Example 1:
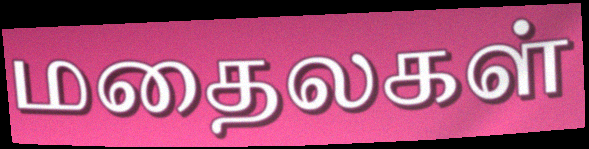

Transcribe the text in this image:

மதைலகள்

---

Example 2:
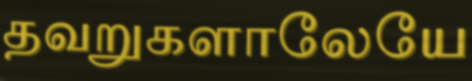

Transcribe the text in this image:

தவறுகளாலேயே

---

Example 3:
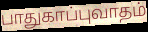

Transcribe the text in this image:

பாதுகாப்புவாதம்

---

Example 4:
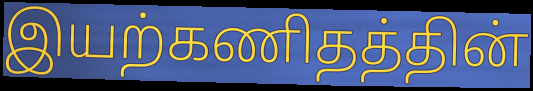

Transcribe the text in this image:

இயற்கணிதத்தின்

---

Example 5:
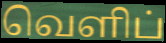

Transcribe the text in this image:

வெளிப்